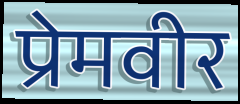
प्रेमवीर